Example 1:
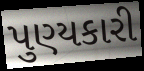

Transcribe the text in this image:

પુણ્યકારી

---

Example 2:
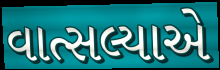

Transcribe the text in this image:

વાત્સલ્યાએ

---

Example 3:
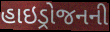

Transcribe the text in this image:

હાઇડ્રોજનની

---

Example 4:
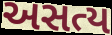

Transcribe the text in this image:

અસત્ય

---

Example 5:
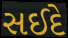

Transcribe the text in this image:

સઈદે